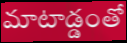
మాటాడ్డంతో